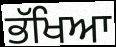
ਭੱਖਿਆ